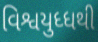
વિશ્વયુધ્ધથી